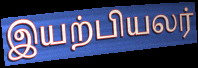
இயற்பியலர்